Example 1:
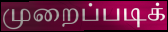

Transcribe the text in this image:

முறைப்படிக்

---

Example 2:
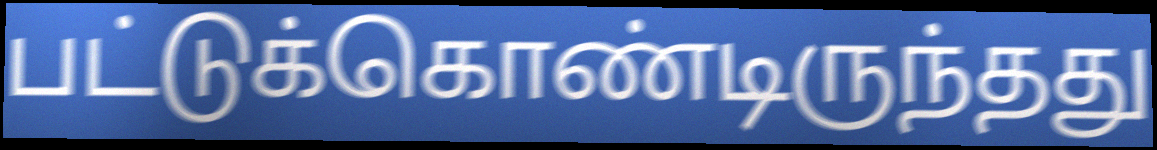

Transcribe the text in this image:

பட்டுக்கொண்டிருந்தது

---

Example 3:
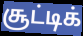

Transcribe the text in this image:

சூட்டிக்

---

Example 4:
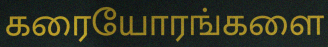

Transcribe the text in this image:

கரையோரங்களை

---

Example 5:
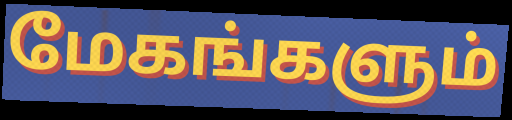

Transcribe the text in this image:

மேகங்களும்